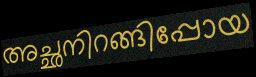
അച്ഛനിറങ്ങിപ്പോയ